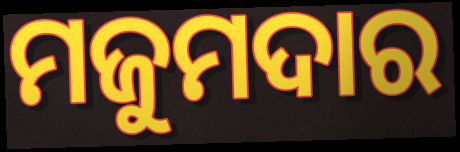
ମଜୁମଦାର